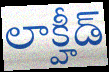
లాక్హీడ్